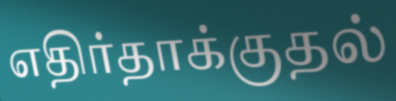
எதிர்தாக்குதல்